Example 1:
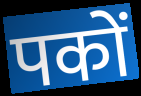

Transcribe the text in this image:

पकों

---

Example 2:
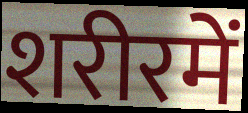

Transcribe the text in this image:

शरीरमें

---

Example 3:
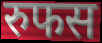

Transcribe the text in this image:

रुफस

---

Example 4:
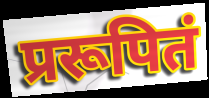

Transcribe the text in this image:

प्ररूपितं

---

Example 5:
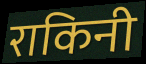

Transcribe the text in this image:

राकिनी